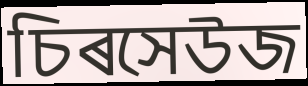
চিৰসেউজ